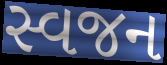
સ્વજન